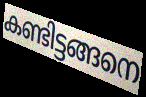
കണ്ടിട്ടങ്ങനെ